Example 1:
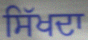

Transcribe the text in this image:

ਸਿੱਖਦਾ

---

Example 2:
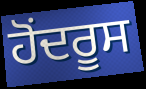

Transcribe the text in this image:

ਹੋਂਦਰੂਸ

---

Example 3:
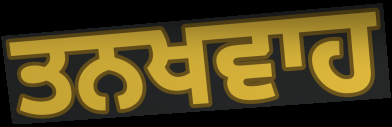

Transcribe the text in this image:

ਤਨਖਵਾਹ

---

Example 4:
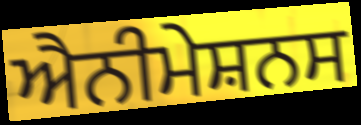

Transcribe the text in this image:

ਐਨੀਮੇਸ਼ਨਸ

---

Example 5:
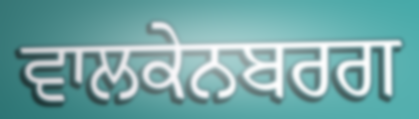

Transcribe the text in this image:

ਵਾਲਕੇਨਬਰਗ